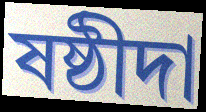
ষষ্ঠীদা